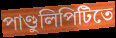
পাণ্ডুলিপিটিতে